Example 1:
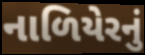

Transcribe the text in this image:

નાળિયેરનું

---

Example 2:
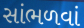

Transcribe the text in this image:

સાંભળવાં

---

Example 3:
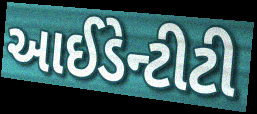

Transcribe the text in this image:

આઈડેન્ટીટી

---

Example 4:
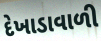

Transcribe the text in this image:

દેખાડાવાળી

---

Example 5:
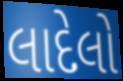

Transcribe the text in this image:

લાદેલો